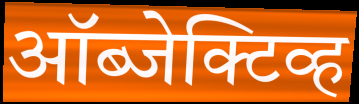
ऑब्जेक्टिव्ह